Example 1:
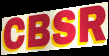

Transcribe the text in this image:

CBSR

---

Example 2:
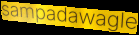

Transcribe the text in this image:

sampadawagle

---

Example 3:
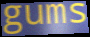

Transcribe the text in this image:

gums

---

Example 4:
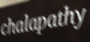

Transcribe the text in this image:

chalapathy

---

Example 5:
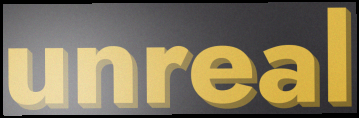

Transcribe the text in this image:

unreal